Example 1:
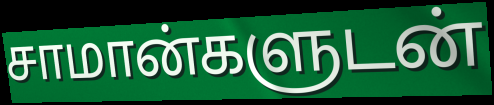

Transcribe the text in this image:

சாமான்களுடன்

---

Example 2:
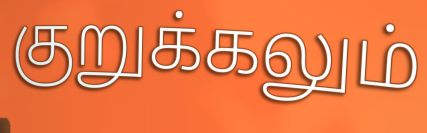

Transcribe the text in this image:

குறுக்கலும்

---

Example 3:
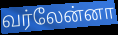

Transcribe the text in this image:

வர்லேன்னா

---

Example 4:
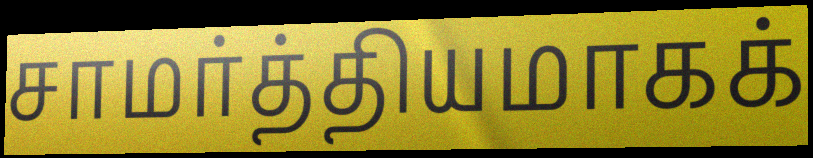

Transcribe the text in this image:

சாமர்த்தியமாகக்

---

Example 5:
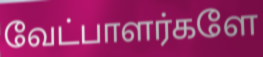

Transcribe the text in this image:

வேட்பாளர்களே